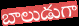
బాలుడుగా